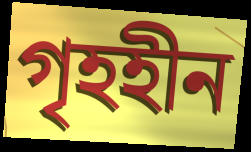
গৃহহীন